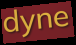
dyne